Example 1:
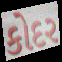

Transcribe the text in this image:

કોદર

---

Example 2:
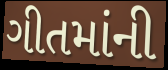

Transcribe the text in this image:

ગીતમાંની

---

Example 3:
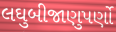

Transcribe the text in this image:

લઘુબીજાણુપર્ણો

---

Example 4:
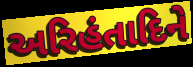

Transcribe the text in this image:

અરિહંતાદિને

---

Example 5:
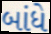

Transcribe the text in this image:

બાંધે